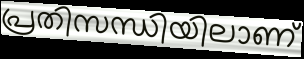
പ്രതിസന്ധിയിലാണ്